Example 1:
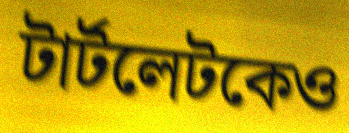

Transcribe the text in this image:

টার্টলেটকেও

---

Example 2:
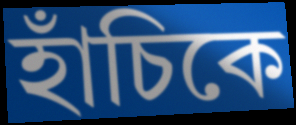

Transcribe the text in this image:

হাঁচিকে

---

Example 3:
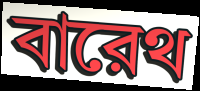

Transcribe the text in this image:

বারেথ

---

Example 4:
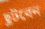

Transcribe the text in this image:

ছুটবেন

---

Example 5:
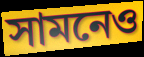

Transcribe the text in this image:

সামনেও